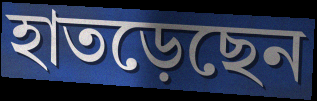
হাতড়েছেন